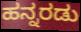
ಹನ್ನರಡು